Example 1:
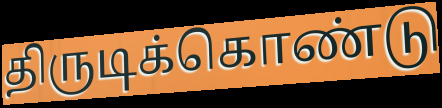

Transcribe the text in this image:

திருடிக்கொண்டு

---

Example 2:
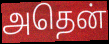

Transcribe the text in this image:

அதென்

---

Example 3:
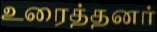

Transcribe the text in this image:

உரைத்தனர்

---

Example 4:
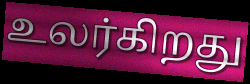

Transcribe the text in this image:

உலர்கிறது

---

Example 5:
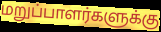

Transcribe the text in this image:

மறுப்பாளர்களுக்கு